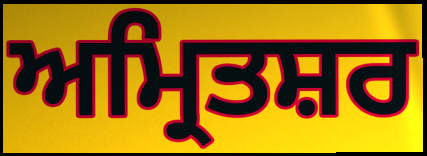
ਅਮ੍ਰਿਤਸ਼ਰ